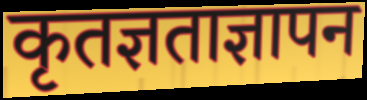
कृतज्ञताज्ञापन